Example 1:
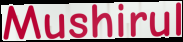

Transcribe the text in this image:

Mushirul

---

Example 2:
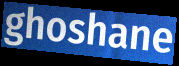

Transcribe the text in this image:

ghoshane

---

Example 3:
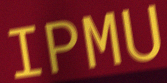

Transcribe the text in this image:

IPMU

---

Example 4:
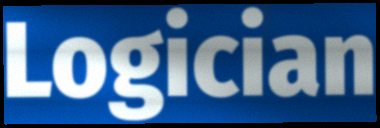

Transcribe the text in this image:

Logician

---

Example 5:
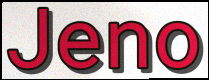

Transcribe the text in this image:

Jeno